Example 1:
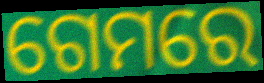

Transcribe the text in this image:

ଗେମରେ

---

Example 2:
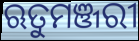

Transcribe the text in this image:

ଋତୁମଞ୍ଜରୀ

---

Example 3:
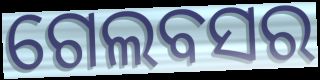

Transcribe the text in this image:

ଗେଲବସର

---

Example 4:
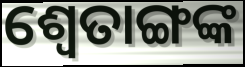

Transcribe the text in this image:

ଶ୍ୱେତାଙ୍ଗଙ୍କ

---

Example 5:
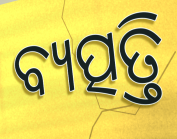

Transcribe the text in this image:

ବ୍ୟତ୍ପତ୍ତି